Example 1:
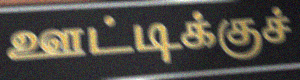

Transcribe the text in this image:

ஊட்டிக்குச்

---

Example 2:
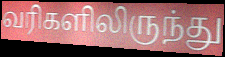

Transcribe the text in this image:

வரிகளிலிருந்து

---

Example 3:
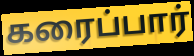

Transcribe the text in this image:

கரைப்பார்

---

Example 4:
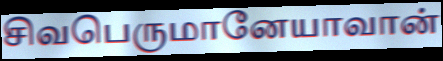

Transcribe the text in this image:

சிவபெருமானேயாவான்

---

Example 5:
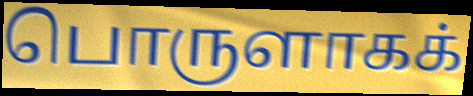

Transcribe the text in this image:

பொருளாகக்